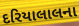
દરિયાલાલના